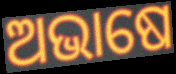
ଅଭାଷେ